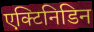
एक्टिनिडिन